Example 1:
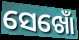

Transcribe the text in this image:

ସେଖୋଁ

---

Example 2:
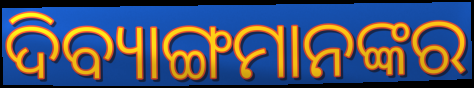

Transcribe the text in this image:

ଦିବ୍ୟାଙ୍ଗମାନଙ୍କର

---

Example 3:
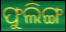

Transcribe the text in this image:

ଫୁଲିଙ୍ଗ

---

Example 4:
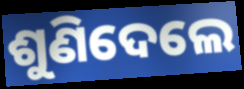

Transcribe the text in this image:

ଶୁଣିଦେଲେ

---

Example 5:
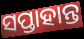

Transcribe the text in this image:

ସପ୍ତାହାନ୍ତ